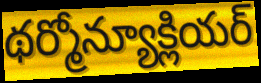
థర్మోన్యూక్లియర్